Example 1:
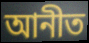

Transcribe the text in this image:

আনীত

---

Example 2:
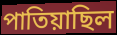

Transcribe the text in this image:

পাতিয়াছিল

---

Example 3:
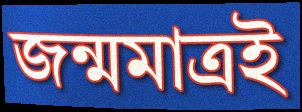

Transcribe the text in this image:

জন্মমাত্রই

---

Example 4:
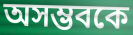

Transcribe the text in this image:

অসম্ভবকে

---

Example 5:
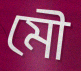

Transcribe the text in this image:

মৌ